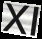
Xl